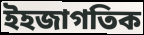
ইহজাগতিক